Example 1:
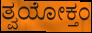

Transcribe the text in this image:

ತ್ವಯೋಕ್ತಂ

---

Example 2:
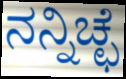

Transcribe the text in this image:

ನನ್ನಿಚ್ಛೆ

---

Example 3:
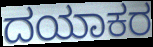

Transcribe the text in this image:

ದಯಾಕರ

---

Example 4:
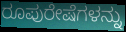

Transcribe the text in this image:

ರೂಪುರೇಷೆಗಳನ್ನು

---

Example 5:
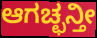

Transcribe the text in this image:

ಆಗಚ್ಛನ್ತೀ